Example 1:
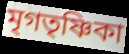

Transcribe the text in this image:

মৃগতৃষ্ণিকা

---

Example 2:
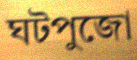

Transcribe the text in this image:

ঘটপুজো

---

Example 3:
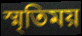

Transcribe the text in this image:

স্মৃতিময়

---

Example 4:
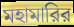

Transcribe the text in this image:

মহামারির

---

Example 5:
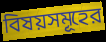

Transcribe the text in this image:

বিষয়সমূহের